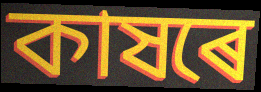
কাষৰে